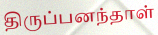
திருப்பனந்தாள்